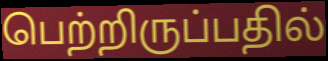
பெற்றிருப்பதில்